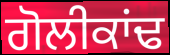
ਗੋਲੀਕਾਂਢ